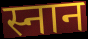
स्नान